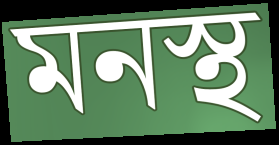
মনস্থ